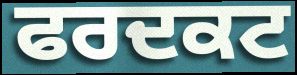
ਫਰਦਕਟ